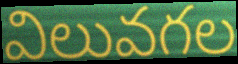
విలువగల